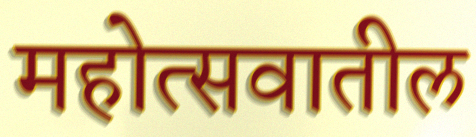
महोत्सवातील